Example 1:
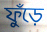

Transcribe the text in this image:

ফুঁড়ে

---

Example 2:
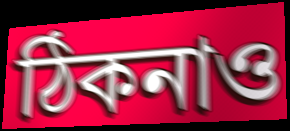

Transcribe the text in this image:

ঠিকনাও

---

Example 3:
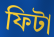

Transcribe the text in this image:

ফিটা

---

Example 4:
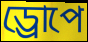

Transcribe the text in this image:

ড্ৰোপে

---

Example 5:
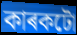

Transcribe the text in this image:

কাৰকটো